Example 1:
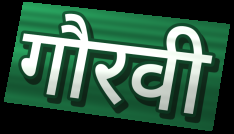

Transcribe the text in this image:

गौरवी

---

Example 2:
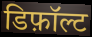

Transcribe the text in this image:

डिफ़ॉल्ट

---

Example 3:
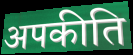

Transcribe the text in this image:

अपकीति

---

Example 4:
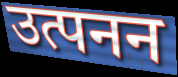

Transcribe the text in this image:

उत्पनन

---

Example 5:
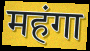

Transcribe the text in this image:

महंगा